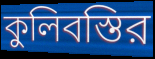
কুলিবস্তির